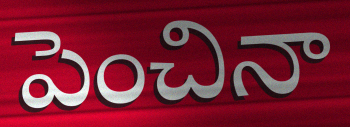
పెంచినా